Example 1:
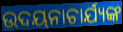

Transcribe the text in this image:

ଉଦୟନାଚାର୍ଯ୍ୟଙ୍କ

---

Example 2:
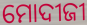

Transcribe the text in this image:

ମୋଦୀଜୀ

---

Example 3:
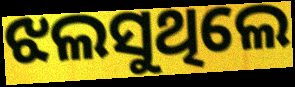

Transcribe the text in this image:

ଝଲସୁଥିଲେ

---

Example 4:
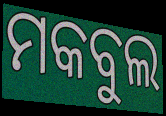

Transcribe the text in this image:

ମକବୁଲ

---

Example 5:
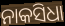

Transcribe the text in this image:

ନାକସିଧା